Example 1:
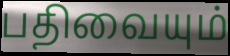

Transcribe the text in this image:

பதிவையும்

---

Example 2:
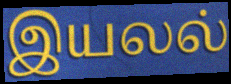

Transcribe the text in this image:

இயலல்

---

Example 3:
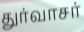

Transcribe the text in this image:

துர்வாசர்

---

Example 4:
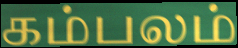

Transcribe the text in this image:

கம்பலம்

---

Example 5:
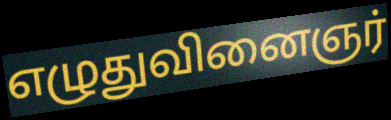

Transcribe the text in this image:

எழுதுவினைஞர்